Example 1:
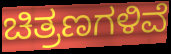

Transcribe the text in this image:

ಚಿತ್ರಣಗಳಿವೆ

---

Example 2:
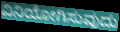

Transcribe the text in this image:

ವಿನಿಯೋಗಿಸುವುದು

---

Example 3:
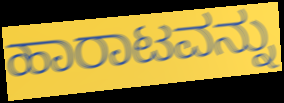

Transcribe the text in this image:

ಹಾರಾಟವನ್ನು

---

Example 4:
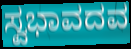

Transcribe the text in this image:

ಸ್ವಭಾವದವ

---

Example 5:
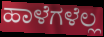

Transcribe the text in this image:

ಹಾಳೆಗಳೆಲ್ಲ